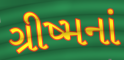
ગ્રીષ્મનાં